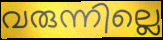
വരുന്നില്ലെ